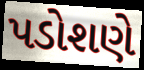
પડોશણે